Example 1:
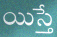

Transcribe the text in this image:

యిస్తే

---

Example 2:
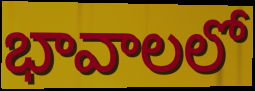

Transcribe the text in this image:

భావాలలో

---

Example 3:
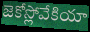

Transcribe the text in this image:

జెకోస్లోవేకియా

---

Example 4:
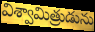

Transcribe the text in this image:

విశ్వామిత్రుడును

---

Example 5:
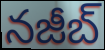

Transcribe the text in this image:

నజీబ్